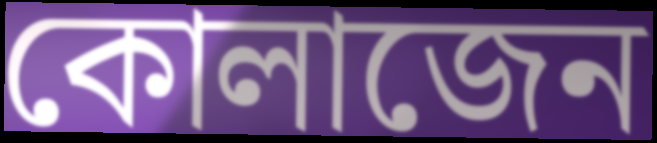
কোলাজেন